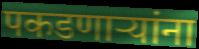
पकडणाऱ्यांना